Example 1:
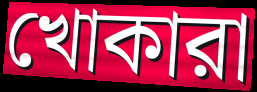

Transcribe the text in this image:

খোকারা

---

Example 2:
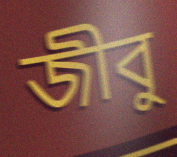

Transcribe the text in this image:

জীবু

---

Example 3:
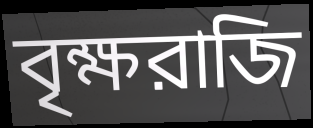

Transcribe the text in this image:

বৃক্ষরাজি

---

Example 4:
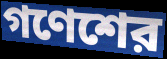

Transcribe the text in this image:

গণেশের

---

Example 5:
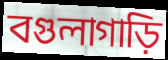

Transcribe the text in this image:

বগুলাগাড়ি